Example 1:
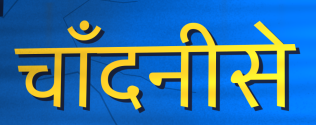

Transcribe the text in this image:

चाँदनीसे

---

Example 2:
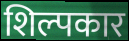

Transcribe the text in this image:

शिल्पकार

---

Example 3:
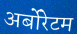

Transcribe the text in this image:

अर्बोरेटम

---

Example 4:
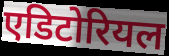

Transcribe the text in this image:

एडिटोरियल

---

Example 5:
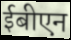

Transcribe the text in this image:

ईबीएन